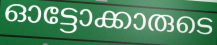
ഓട്ടോക്കാരുടെ